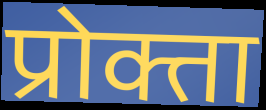
प्रोक्ता